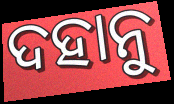
ଦହାନୁ